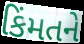
કિંમતને